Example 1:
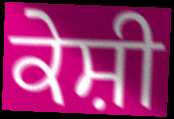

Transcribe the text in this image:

ਕੇਸ਼ੀ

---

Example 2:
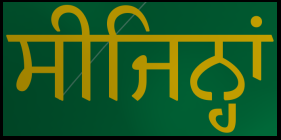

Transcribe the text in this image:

ਸੀਜਿਨ੍ਹਾਂ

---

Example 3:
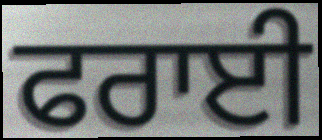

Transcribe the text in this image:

ਫਰਾਈ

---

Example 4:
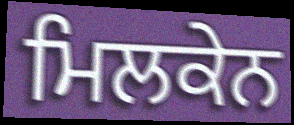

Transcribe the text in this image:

ਮਿਲਕੇਨ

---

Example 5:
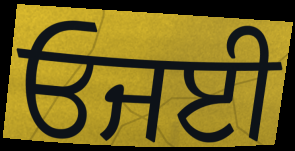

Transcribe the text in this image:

ਓਜਈ